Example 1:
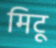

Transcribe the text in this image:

मिटू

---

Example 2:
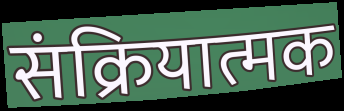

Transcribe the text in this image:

संक्रियात्मक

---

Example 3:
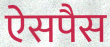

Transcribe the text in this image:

ऐसपैस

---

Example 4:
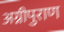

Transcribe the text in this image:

अग्नीपुराण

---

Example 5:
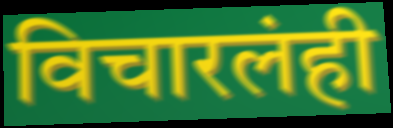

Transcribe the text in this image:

विचारलंही